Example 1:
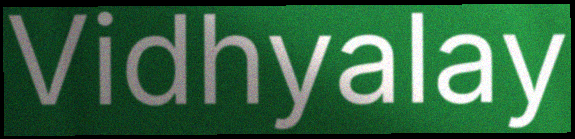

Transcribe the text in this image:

Vidhyalay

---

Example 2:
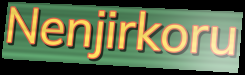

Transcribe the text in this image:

Nenjirkoru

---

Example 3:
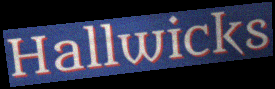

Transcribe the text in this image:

Hallwicks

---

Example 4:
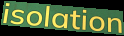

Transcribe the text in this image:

isolation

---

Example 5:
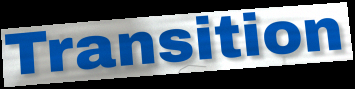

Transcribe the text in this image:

Transition